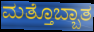
ಮತ್ತೊಬ್ಬಾತ